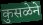
कुसळेने